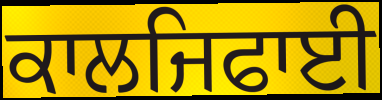
ਕਾਲਜਿਫਾਈ